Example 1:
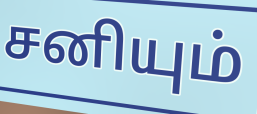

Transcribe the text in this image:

சனியும்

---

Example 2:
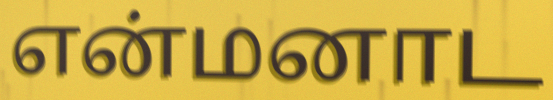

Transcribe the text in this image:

என்மனாட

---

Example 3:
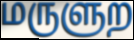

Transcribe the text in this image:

மருளுற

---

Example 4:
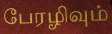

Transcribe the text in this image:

பேரழிவும்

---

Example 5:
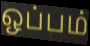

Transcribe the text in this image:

ஒப்பம்